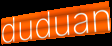
duduan